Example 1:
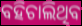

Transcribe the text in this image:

ବହିଚାଲିଥିବ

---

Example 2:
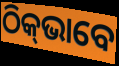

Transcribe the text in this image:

ଠିକ୍‌ଭାବେ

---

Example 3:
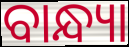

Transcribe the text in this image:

ବାନ୍ଧ୍ୟା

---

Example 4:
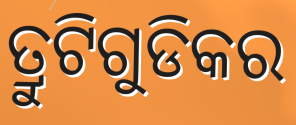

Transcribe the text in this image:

ତ୍ରୁଟିଗୁଡିକର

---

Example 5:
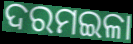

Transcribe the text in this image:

ଦରମଇଳା